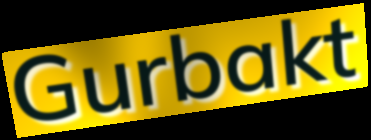
Gurbakt